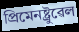
প্ৰিমেনষ্ট্ৰুৱেল